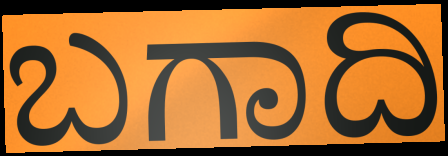
ಬಗಾದಿ